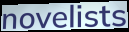
novelists